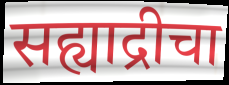
सह्याद्रीचा